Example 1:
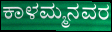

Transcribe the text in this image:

ಕಾಳಮ್ಮನವರ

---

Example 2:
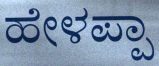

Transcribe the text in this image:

ಹೇಳಪ್ಪಾ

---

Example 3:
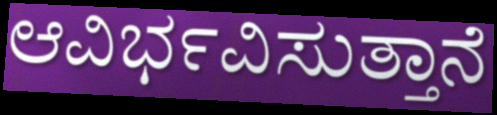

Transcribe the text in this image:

ಆವಿರ್ಭವಿಸುತ್ತಾನೆ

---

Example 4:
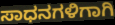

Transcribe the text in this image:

ಸಾಧನಗಳಿಗಾಗಿ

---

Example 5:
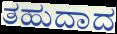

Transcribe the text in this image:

ತಹುದಾದ